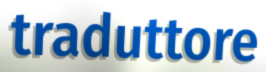
traduttore